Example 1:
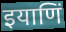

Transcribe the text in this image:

इयाणिं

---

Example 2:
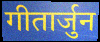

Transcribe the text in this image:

गीतार्जुन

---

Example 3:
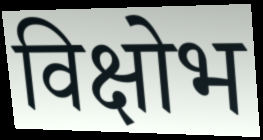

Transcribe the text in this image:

विक्षोभ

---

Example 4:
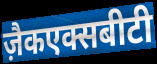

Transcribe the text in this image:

ज़ैकएक्सबीटी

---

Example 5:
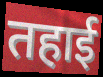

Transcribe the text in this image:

तहाई